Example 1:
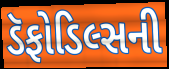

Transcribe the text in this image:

ડૅફોડિલ્સની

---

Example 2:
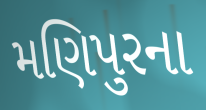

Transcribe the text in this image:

મણિપુરના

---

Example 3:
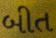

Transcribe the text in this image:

બીત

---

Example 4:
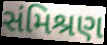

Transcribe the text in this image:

સંમિશ્રણ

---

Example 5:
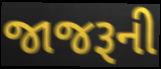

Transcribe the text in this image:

જાજરૂની